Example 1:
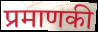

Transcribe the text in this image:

प्रमाणकी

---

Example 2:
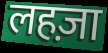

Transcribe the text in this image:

लहज़ा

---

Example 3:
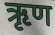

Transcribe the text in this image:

ऋृण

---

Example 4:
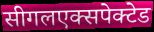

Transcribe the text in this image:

सीगलएक्सपेक्टेड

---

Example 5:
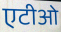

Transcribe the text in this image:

एटीओ